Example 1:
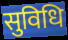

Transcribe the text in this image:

सुविधि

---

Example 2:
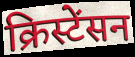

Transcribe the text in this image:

क्रिस्टेंसन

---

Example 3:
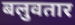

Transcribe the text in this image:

बलुवतार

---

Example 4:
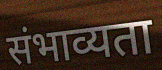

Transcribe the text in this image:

संभाव्यता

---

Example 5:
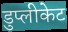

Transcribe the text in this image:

डुप्‍लीकेट